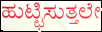
ಹುಟ್ಟಿಸುತ್ತಲೇ